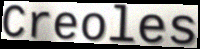
Creoles